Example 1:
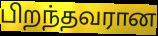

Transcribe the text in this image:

பிறந்தவரான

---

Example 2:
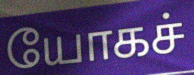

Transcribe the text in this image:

யோகச்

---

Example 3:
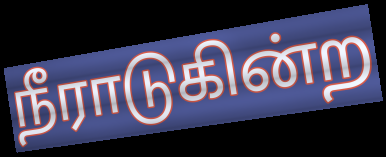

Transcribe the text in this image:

நீராடுகின்ற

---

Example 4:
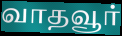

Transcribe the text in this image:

வாதவூர்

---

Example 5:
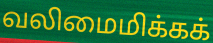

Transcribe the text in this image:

வலிமைமிக்கக்